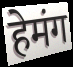
हेमंग